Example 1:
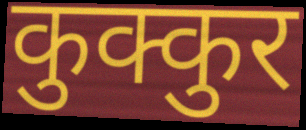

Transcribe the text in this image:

कुक्कुर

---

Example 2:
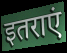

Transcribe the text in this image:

इतराएं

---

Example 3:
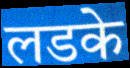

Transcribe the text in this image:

लडके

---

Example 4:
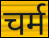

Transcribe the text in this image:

चर्म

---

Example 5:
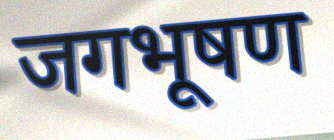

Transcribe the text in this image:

जगभूषण